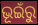
ଭୂଇଁରୁ